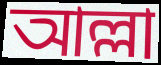
আল্লা